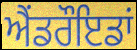
ਐਂਡਰੌਇਡਾਂ